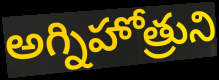
అగ్నిహోత్రుని